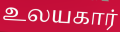
உலயகார்